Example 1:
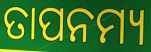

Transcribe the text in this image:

ତାପନମ୍ୟ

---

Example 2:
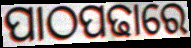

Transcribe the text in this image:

ପାଠପଢାରେ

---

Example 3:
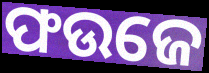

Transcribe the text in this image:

ଫଉଜେ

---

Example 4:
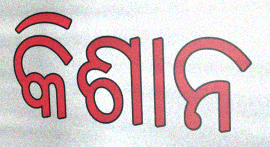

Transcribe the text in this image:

କିଶାନ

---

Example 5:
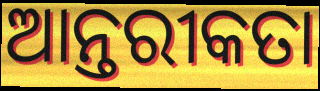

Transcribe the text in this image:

ଆନ୍ତରୀକତା